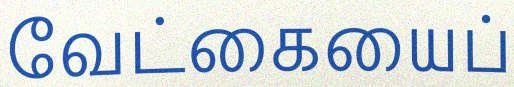
வேட்கையைப்